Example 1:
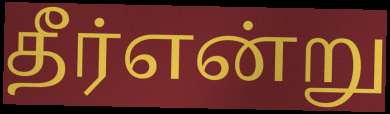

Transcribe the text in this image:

தீர்என்று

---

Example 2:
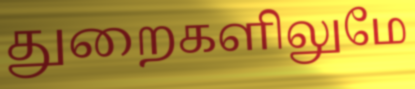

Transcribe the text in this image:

துறைகளிலுமே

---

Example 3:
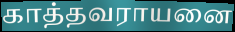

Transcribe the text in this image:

காத்தவராயனை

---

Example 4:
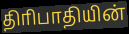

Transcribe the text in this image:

திரிபாதியின்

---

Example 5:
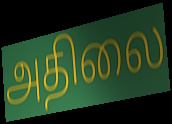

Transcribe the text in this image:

அதிலை